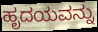
ಹೃದಯವನ್ನು